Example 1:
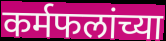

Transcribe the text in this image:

कर्मफलांच्या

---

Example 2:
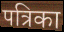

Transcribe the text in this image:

पत्रिका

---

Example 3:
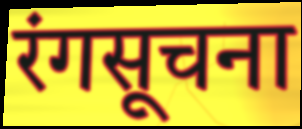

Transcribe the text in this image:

रंगसूचना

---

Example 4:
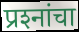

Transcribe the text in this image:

प्रश्‍नांचा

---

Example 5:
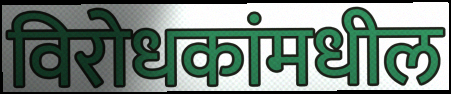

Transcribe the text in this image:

विरोधकांमधील